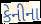
કેનીના